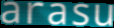
arasu